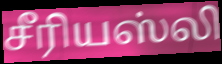
சீரியஸ்லி